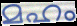
മഹം